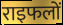
राइफलों